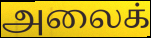
அலைக்